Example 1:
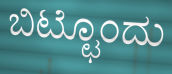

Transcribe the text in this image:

ಬಿಟ್ಟೊಂದು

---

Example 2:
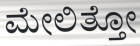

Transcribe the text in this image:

ಮೇಲಿತ್ತೋ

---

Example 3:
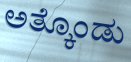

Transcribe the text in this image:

ಅತ್ಕೊಂಡು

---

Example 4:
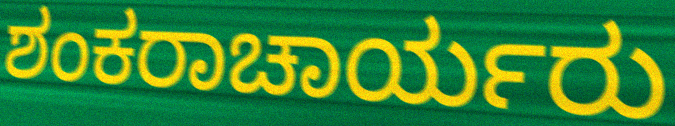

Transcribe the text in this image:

ಶಂಕರಾಚಾರ್ಯರು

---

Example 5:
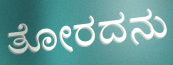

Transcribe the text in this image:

ತೋರದನು